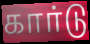
கார்டு